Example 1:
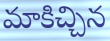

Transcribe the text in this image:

మాకిచ్చిన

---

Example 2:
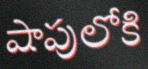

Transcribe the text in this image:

షాపులోకి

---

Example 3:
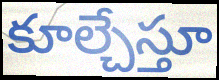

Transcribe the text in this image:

కూల్చేస్తూ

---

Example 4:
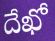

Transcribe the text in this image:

దేఖో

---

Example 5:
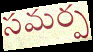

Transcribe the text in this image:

సమర్ప